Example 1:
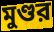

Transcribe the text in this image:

মুণ্ডর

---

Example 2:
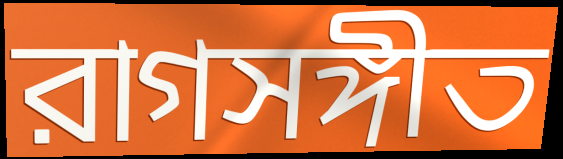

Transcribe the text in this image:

রাগসঙ্গীত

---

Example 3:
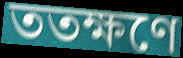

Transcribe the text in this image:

ততক্ষণে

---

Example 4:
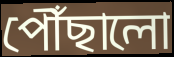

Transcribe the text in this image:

পৌঁছালো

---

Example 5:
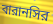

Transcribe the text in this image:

বারানসির